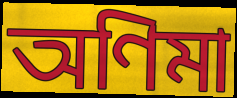
অণিমা